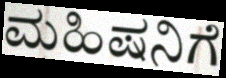
ಮಹಿಷನಿಗೆ